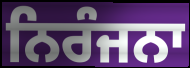
ਨਿਰੰਜਨਾ